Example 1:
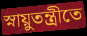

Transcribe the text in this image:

স্নায়ুতন্ত্রীতে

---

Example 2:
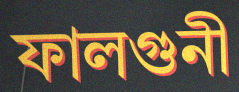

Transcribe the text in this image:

ফালগুনী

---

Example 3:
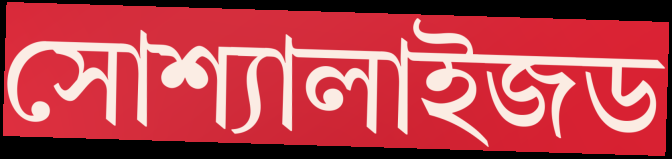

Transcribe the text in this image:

সোশ্যালাইজড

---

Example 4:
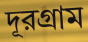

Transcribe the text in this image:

দূরগ্রাম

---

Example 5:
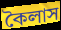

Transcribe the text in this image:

কৈলাস